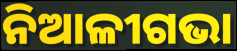
ନିଆଳୀଗଭା